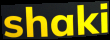
shaki